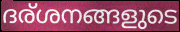
ദര്ശനങ്ങളുടെ